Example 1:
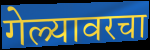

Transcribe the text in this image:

गेल्यावरचा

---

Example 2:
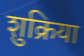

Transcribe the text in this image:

शुक्रिया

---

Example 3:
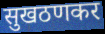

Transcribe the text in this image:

सुखठणकर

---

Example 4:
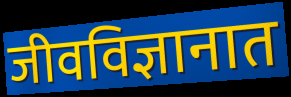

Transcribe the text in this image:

जीवविज्ञानात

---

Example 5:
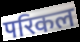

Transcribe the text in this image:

परिकल